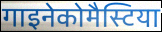
गाइनेकोमैस्टिया